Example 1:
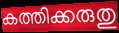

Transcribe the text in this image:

കത്തിക്കരുതു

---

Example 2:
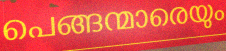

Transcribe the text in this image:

പെങ്ങന്മാരെയും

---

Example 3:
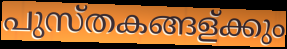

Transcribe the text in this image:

പുസ്തകങ്ങള്ക്കും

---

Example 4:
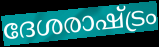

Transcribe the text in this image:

ദേശരാഷ്ട്രം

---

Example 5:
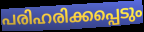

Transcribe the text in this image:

പരിഹരിക്കപ്പെടും